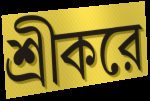
শ্রীকরে